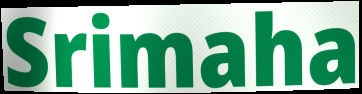
Srimaha